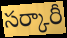
సర్కారీ